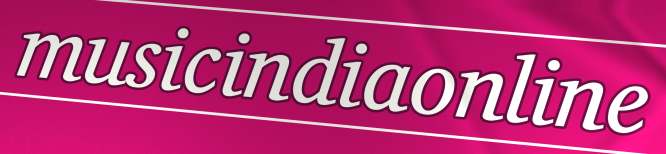
musicindiaonline